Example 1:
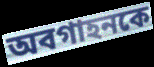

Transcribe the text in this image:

অবগাহনকে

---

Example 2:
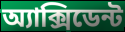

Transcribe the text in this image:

অ্যাক্সিডেন্ট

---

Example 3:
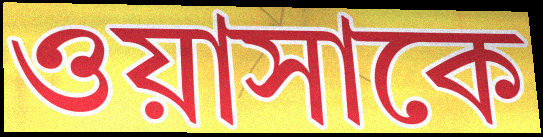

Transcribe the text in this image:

ওয়াসাকে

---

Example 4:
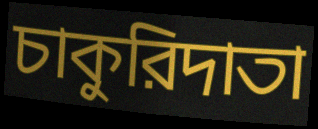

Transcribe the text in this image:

চাকুরিদাতা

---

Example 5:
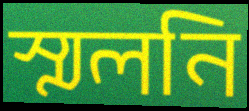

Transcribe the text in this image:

স্মলনি